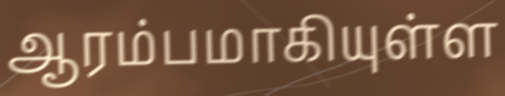
ஆரம்பமாகியுள்ள